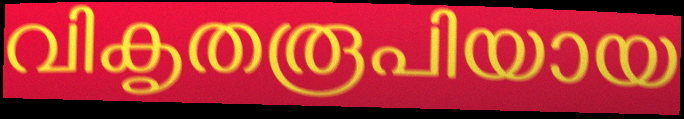
വികൃതരൂപിയായ